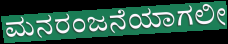
ಮನರಂಜನೆಯಾಗಲೀ